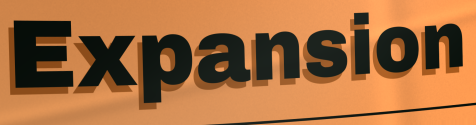
Expansion